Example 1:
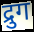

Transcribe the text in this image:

द्रुग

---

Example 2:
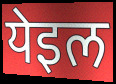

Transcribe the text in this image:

येइल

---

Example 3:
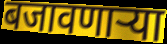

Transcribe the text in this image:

बजावणाऱ्या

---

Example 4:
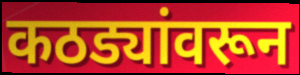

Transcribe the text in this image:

कठड्यांवरून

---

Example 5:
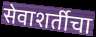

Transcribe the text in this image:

सेवाशर्तीचा